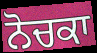
ਨੋਚਕਾ